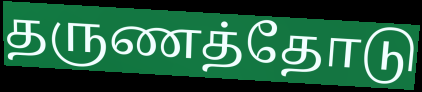
தருணத்தோடு